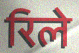
रिले